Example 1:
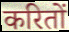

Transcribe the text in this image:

करितों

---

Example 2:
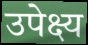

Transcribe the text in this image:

उपेक्ष्य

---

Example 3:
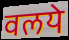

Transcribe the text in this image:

वलये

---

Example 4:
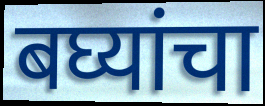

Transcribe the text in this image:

बघ्यांचा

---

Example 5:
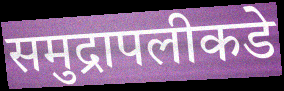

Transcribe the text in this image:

समुद्रापलीकडे